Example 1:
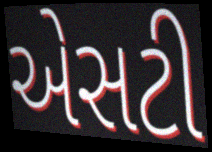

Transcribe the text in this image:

એસટી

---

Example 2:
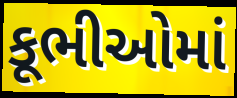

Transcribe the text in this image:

કૂભીઓમાં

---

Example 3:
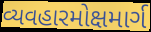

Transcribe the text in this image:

વ્યવહારમોક્ષમાર્ગ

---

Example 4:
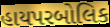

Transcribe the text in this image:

હાયપરબોલિક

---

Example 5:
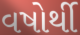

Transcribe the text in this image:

વષોર્થી